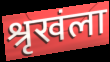
श्रृखंला